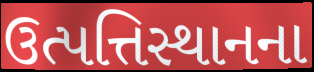
ઉત્પત્તિસ્થાનના